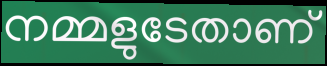
നമ്മളുടേതാണ്